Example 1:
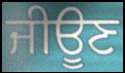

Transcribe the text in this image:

ਜੀਊਣ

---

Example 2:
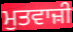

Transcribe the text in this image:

ਮੁਤਵਾਜ਼ੀ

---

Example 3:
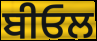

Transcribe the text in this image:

ਬੀਓਲ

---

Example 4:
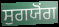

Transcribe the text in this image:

ਸੁਗਯੋਂਗ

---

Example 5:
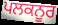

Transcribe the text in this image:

ਪਲਕਨੂਰ